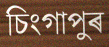
চিংগাপুৰ